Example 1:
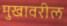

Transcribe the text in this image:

मुखावरील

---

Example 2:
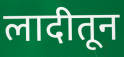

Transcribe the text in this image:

लादीतून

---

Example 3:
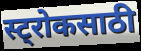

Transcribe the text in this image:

स्ट्रोकसाठी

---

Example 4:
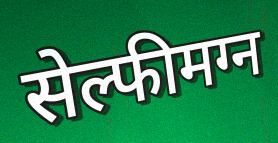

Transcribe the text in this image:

सेल्फीमग्न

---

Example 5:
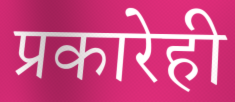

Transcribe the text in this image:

प्रकारेही